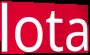
lota